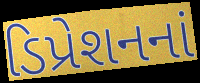
ડિપ્રેશનનાં